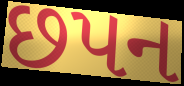
છપન